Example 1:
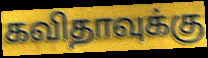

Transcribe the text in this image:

கவிதாவுக்கு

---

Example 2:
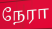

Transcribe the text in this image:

நேரா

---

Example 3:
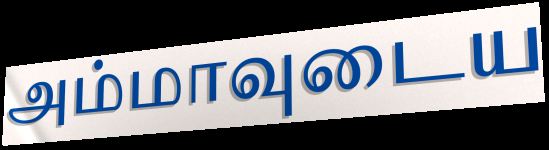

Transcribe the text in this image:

அம்மாவுடைய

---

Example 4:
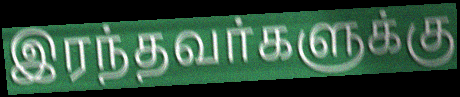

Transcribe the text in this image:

இரந்தவர்களுக்கு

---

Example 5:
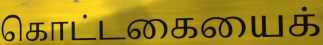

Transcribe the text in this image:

கொட்டகையைக்